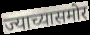
ज्याच्यासमोर